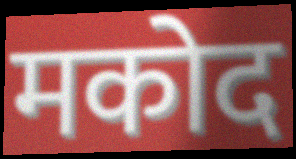
मकोद